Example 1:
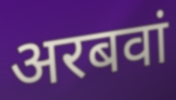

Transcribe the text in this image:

अरबवां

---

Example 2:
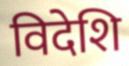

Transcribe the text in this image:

विदेशि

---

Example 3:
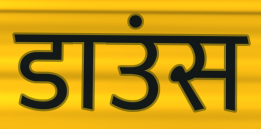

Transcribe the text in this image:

डाउंस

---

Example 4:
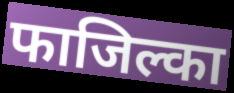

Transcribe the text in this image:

फाजिल्का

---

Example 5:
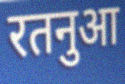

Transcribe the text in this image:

रतनुआ